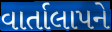
વાર્તાલાપને